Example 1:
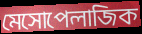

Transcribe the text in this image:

মেসোপেলাজিক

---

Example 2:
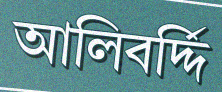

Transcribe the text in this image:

আলিবর্দ্দি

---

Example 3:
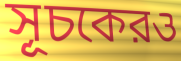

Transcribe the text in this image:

সূচকেরও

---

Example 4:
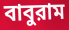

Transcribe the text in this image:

বাবুরাম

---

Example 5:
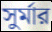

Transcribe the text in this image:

সুর্মার